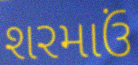
શરમાઉં